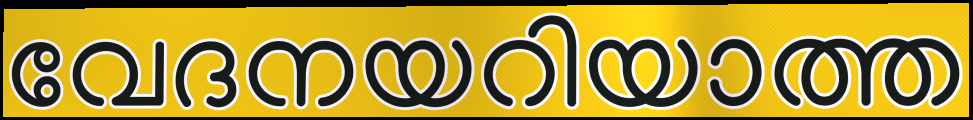
വേദനയറിയാത്ത